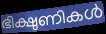
ഭിക്ഷുണികൾ